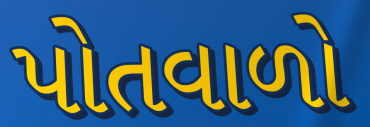
પોતવાળો